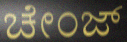
ಚೇಂಜ್